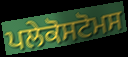
ਪਲੇਕੋਸਟੋਮਸ